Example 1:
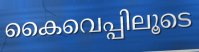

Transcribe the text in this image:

കൈവെപ്പിലൂടെ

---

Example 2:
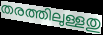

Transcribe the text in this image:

തരത്തിലുള്ളതു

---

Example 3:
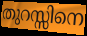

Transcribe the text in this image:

തുറസ്സിനെ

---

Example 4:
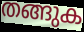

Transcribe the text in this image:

തങ്ങുക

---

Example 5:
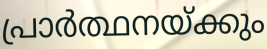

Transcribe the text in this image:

പ്രാർത്ഥനയ്ക്കും